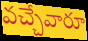
వచ్చేవారూ